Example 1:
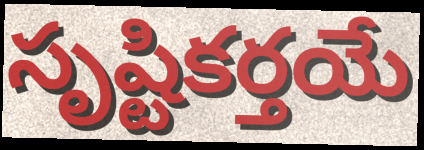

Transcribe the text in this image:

సృష్టికర్తయే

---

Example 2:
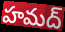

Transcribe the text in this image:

హమద్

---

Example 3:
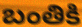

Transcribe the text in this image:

బంతికి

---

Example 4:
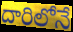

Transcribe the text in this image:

దారిలోనే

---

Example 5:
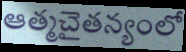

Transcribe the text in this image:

ఆత్మచైతన్యంలో